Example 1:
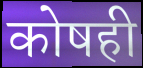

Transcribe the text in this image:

कोषही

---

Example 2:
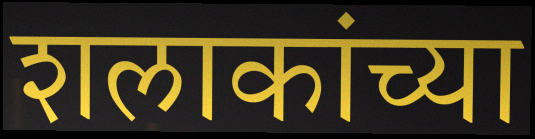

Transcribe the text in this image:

शलाकांच्या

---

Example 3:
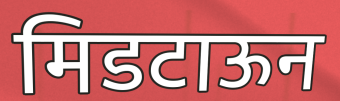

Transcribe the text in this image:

मिडटाऊन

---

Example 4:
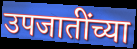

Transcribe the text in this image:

उपजातींच्या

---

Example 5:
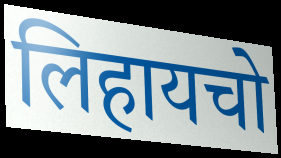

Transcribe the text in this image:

लिहायचो